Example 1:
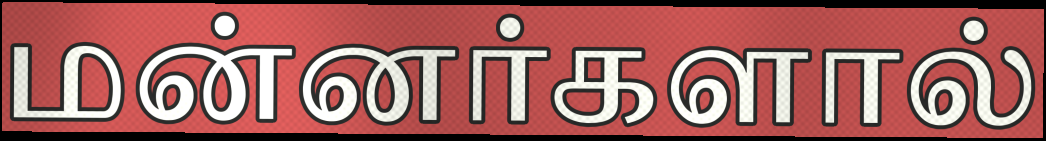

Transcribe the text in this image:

மன்னர்களால்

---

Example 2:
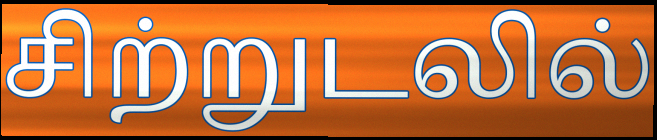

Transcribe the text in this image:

சிற்றுடலில்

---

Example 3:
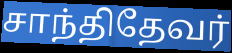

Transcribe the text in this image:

சாந்திதேவர்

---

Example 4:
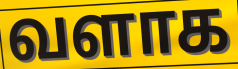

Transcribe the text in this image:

வளாக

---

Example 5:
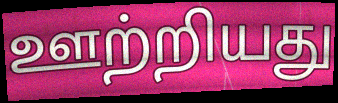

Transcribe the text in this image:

ஊற்றியது